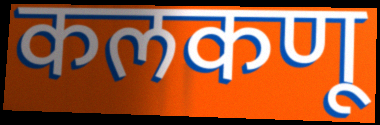
कलकणू